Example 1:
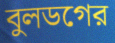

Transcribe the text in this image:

বুলডগের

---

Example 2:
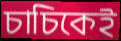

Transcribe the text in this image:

চাচিকেই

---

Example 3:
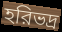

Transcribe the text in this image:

হরিভদ্র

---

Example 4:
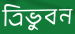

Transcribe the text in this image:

ত্রিভুবন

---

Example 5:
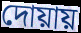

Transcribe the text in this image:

দোয়ায়